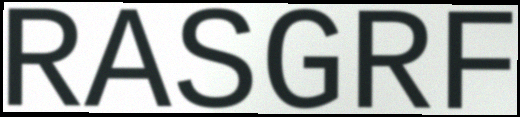
RASGRF